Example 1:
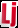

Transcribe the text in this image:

Lj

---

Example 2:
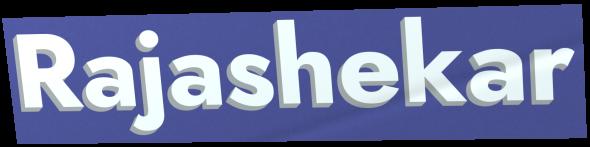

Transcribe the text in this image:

Rajashekar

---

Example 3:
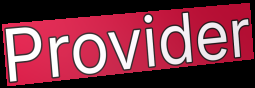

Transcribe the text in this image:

Provider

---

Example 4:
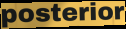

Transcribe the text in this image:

posterior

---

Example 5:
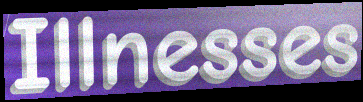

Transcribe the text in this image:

Illnesses